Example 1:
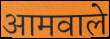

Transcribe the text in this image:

आमवाले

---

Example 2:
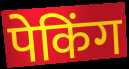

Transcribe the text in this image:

पेकिंग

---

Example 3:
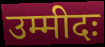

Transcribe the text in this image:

उम्मीदः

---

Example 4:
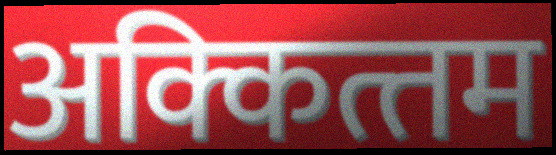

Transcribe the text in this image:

अक्‍कित्‍तम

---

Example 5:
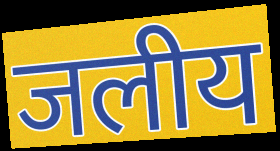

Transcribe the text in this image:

जलीय